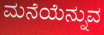
ಮನೆಯೆನ್ನುವ